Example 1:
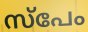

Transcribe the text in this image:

സ്പേം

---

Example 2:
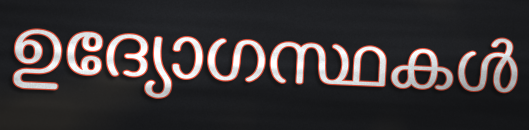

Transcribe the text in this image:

ഉദ്യോഗസ്ഥകൾ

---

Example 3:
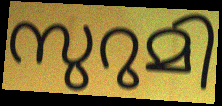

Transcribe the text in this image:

സുറുമി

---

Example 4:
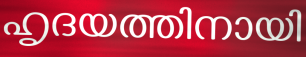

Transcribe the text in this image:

ഹൃദയത്തിനായി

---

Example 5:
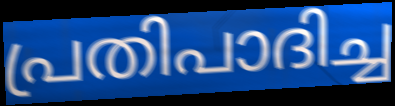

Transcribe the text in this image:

പ്രതിപാദിച്ച